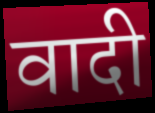
वादी